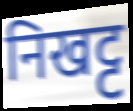
निखट्ट